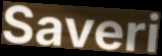
Saveri